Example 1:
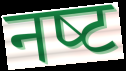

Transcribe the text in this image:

नष्‍ट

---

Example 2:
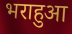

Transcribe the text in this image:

भराहुआ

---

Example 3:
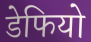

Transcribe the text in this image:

डेफियो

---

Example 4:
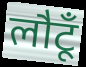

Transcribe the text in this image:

लौटूँ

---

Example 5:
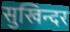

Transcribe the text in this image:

सुखिन्दर